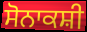
ਸੋਨਾਕਸ਼ੀ